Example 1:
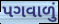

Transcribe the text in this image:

પગવાળું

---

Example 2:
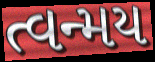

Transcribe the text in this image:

ત્વન્મય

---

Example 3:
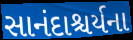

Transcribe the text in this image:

સાનંદાશ્ચર્યના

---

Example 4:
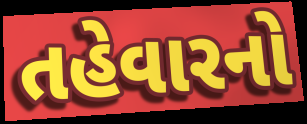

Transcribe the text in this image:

તહેવારનો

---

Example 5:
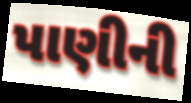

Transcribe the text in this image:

પાણીની